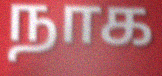
நாக